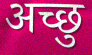
अच्छु